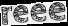
reee